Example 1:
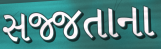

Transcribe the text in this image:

સજ્જતાના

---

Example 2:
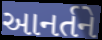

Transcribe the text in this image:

આનર્તને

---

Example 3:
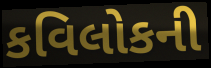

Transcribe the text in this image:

કવિલોકની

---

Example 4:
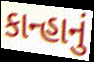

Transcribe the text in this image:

કાન્હાનું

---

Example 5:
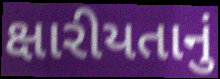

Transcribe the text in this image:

ક્ષારીયતાનું